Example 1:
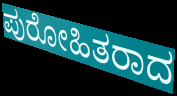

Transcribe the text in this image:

ಪುರೋಹಿತರಾದ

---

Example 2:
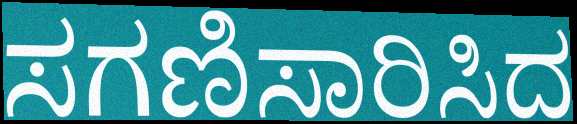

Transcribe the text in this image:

ಸಗಣಿಸಾರಿಸಿದ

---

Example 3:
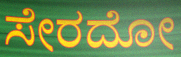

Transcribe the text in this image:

ಸೇರದೋ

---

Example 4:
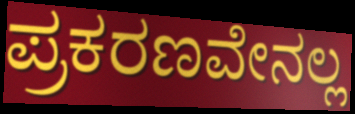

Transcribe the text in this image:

ಪ್ರಕರಣವೇನಲ್ಲ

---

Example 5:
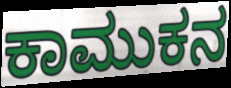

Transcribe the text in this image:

ಕಾಮುಕನ